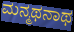
ಮನ್ಮಥನಾಥ